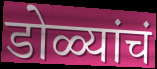
डोळ्यांचं